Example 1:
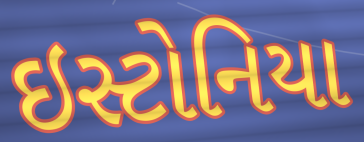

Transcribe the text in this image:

ઇસ્ટોનિયા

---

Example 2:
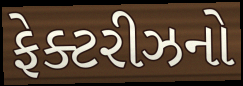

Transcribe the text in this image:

ફેક્ટરીઝનો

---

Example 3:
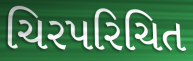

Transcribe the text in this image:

ચિરપરિચિત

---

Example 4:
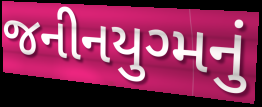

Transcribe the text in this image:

જનીનયુગ્મનું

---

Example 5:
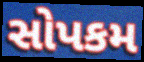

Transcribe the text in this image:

સોપકમ